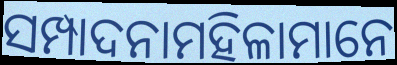
ସମ୍ପାଦନାମହିଳାମାନେ